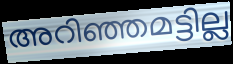
അറിഞ്ഞമട്ടില്ല